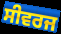
ਸੀਵਰਜ